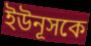
ইউনূসকে